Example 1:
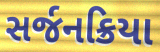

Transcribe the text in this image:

સર્જનક્રિયા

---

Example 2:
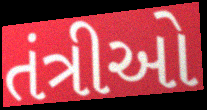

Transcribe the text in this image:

તંત્રીઓ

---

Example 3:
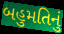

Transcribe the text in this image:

બહુમતિનું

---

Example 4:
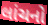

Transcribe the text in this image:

લાંચનો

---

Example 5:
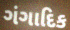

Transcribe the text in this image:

ગંગાદિક